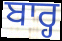
ਬਾਰ੍ਹ